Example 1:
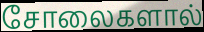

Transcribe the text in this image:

சோலைகளால்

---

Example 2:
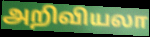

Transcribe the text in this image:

அறிவியலா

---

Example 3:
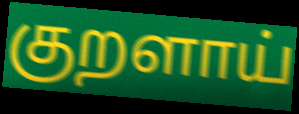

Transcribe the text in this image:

குறளாய்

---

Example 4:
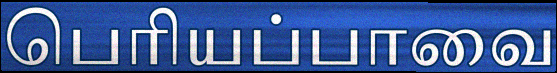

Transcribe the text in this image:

பெரியப்பாவை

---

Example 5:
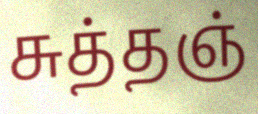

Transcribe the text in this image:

சுத்தஞ்